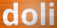
doli